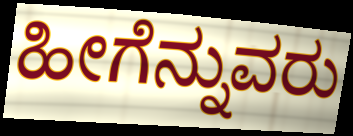
ಹೀಗೆನ್ನುವರು